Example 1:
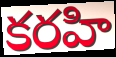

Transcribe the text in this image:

కరహి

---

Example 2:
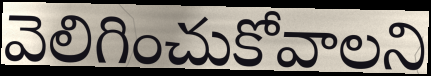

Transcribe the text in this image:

వెలిగించుకోవాలని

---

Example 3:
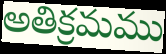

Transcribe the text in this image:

అతిక్రమము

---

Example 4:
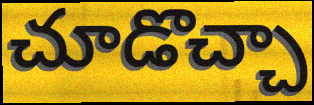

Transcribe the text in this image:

చూడొచ్చా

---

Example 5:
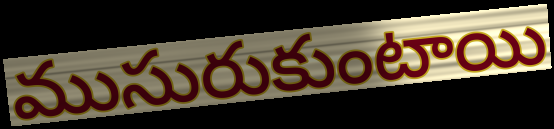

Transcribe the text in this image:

ముసురుకుంటాయి